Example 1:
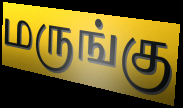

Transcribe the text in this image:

மருங்கு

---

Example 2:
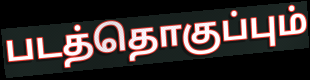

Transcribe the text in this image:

படத்தொகுப்பும்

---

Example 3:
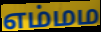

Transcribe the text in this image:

எம்மம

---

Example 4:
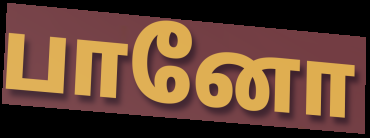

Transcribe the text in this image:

பானோ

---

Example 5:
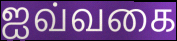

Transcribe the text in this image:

ஐவ்வகை